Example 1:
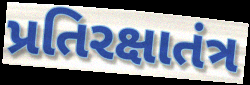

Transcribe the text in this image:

પ્રતિરક્ષાતંત્ર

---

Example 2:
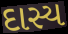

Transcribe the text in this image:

દાસ્ય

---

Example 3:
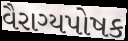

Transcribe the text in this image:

વૈરાગ્યપોષક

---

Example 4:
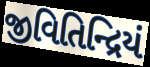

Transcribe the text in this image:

જીવિતિન્દ્રિયં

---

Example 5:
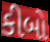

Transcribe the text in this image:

કીબો